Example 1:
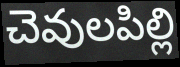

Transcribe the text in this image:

చెవులపిల్లి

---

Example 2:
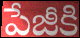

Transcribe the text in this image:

పేజీకి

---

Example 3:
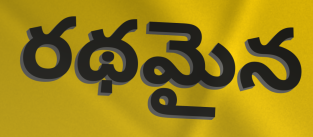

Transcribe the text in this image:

రథమైన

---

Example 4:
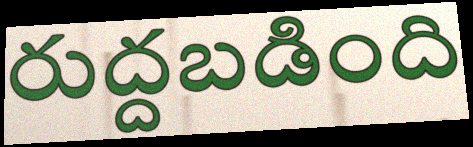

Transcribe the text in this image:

రుద్దబడింది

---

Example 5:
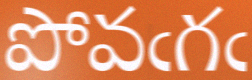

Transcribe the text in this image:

పోవఁగఁ